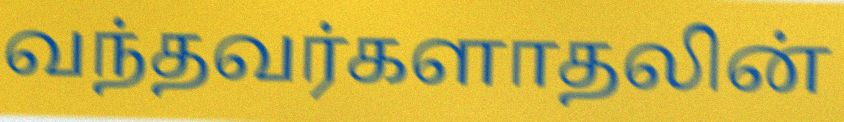
வந்தவர்களாதலின்